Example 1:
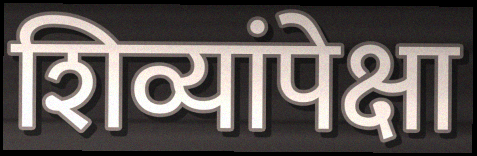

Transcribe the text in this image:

शिव्यांपेक्षा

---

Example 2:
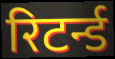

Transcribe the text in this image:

रिटर्न्ड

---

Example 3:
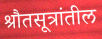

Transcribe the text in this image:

श्रौतसूत्रांतील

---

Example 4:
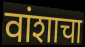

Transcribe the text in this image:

वांशाचा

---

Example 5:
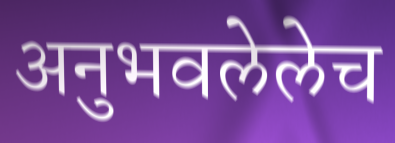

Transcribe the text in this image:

अनुभवलेलेच